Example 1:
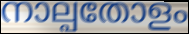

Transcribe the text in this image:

നാല്പതോളം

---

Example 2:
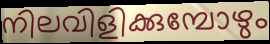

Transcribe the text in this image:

നിലവിളിക്കുമ്പോഴും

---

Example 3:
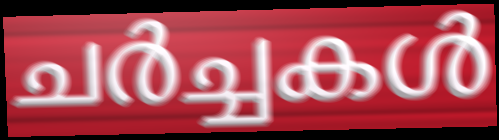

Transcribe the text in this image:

ചർച്ചകൾ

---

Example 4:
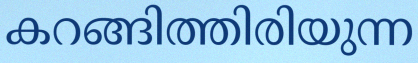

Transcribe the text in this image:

കറങ്ങിത്തിരിയുന്ന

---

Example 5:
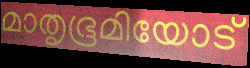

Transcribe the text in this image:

മാതൃഭൂമിയോട്